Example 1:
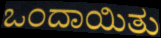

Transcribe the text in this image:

ಒಂದಾಯಿತು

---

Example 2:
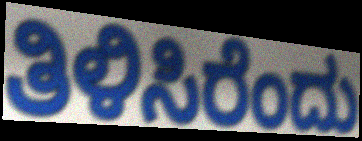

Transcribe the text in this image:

ತಿಳಿಸಿರೆಂದು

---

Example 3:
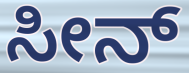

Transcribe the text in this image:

ಸೀನ್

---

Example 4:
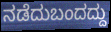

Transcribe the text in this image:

ನಡೆದುಬಂದದ್ದು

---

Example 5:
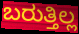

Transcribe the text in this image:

ಬರುತ್ತಿಲ್ಲ